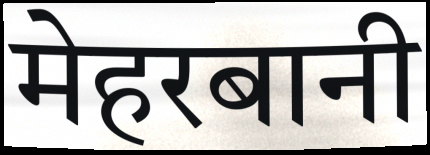
मेहरबानी